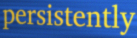
persistently